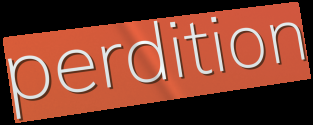
perdition